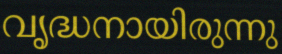
വൃദ്ധനായിരുന്നു